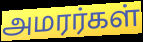
அமரர்கள்